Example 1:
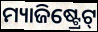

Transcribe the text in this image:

ମ୍ୟାଜିଷ୍ଟ୍ରେଟ୍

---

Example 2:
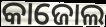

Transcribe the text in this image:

କାଜୋଲ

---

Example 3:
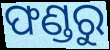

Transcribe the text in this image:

ଫଣ୍ଡରୁ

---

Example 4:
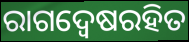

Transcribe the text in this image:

ରାଗଦ୍ୱେଷରହିତ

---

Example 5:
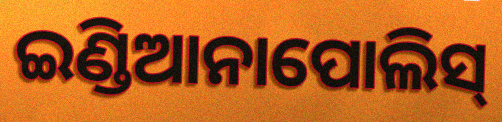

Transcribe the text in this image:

ଇଣ୍ଡିଆନାପୋଲିସ୍